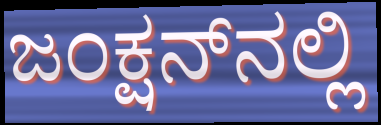
ಜಂಕ್ಷನ್‌ನಲ್ಲಿ